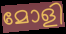
മോളി